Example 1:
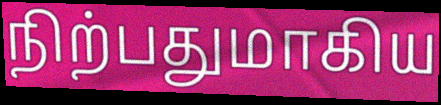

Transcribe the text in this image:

நிற்பதுமாகிய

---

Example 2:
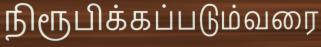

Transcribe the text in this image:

நிரூபிக்கப்படும்வரை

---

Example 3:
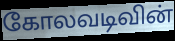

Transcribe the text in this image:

கோலவடிவின்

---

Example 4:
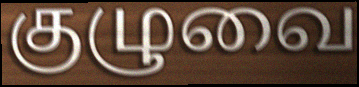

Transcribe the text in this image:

குழுவை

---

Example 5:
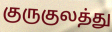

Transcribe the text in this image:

குருகுலத்து